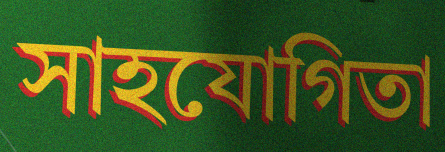
সাহযোগিতা